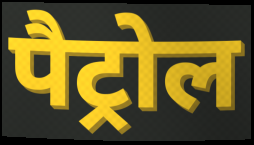
पैट्रोल